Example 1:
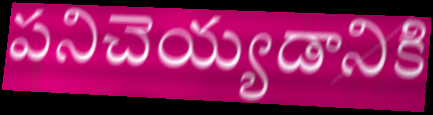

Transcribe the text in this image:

పనిచెయ్యడానికి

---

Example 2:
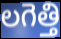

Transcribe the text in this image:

లగెత్తి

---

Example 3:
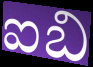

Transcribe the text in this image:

ఐబి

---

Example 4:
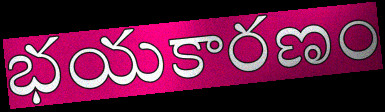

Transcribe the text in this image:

భయకారణం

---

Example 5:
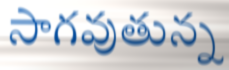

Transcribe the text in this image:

సాగవుతున్న